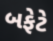
બફેટે